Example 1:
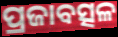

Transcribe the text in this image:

ପ୍ରଜାବତ୍ସଳ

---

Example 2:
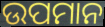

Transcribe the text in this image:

ଉପମାନ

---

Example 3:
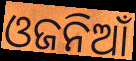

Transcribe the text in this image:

ଓଜନିଆଁ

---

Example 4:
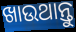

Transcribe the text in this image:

ଖାଉଥାନ୍ତୁ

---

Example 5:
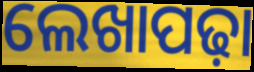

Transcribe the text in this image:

ଲେଖାପଢ଼ା